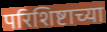
परिशिष्टाच्या